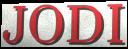
JODI